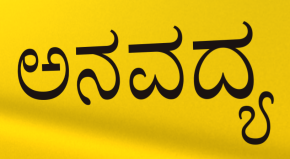
ಅನವದ್ಯ